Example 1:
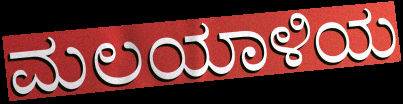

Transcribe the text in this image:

ಮಲಯಾಳಿಯ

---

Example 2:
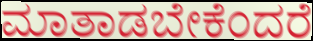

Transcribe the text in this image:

ಮಾತಾಡಬೇಕೆಂದರೆ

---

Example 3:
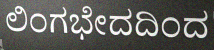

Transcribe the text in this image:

ಲಿಂಗಭೇದದಿಂದ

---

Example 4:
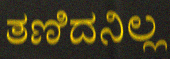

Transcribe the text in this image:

ತಣಿದನಿಲ್ಲ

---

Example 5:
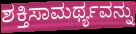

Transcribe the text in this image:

ಶಕ್ತಿಸಾಮರ್ಥ್ಯವನ್ನು